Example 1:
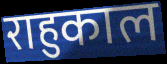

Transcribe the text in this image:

राहुकाल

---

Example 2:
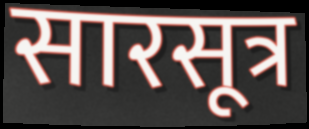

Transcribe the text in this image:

सारसूत्र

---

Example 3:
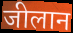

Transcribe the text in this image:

जीलान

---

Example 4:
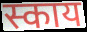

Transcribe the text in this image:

स्काय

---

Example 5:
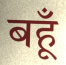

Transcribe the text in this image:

बहूँ